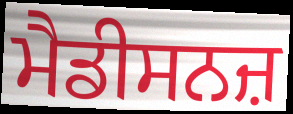
ਮੈਡੀਸਨਜ਼